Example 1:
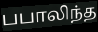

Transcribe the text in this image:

பபாலிந்த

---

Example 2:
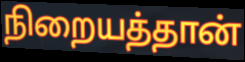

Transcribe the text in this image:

நிறையத்தான்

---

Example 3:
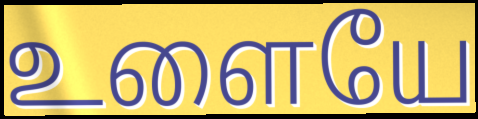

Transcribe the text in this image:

உளையே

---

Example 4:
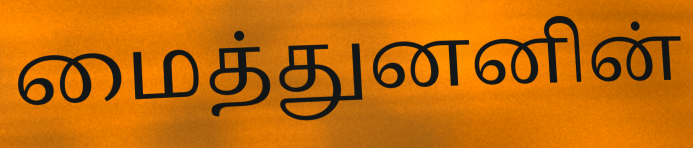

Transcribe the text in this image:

மைத்துனனின்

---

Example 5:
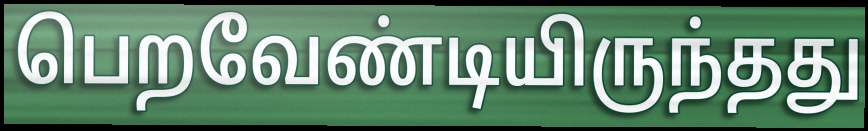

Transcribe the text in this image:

பெறவேண்டியிருந்தது